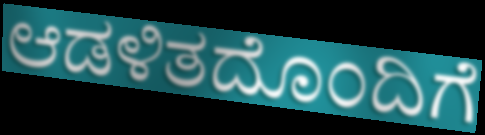
ಆಡಳಿತದೊಂದಿಗೆ